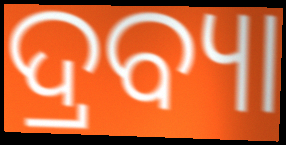
ଦ୍ରବ୍ୟା